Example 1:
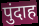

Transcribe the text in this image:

पुंदाह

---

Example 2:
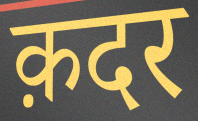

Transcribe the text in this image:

क़दर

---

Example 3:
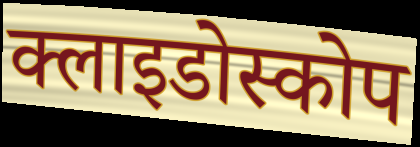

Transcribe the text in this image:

क्लाइडोस्कोप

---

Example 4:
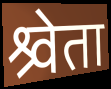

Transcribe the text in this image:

श्र्वेता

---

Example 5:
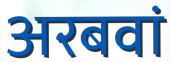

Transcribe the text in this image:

अरबवां